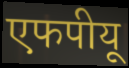
एफपीयू